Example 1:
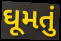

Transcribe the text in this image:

ઘૂમતું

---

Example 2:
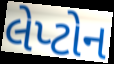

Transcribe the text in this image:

લેપ્ટોન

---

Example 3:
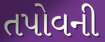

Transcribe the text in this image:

તપોવની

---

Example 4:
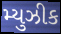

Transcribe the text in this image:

મ્યુઝીક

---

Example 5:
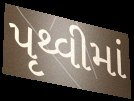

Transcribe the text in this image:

પૃથ્વીમાં